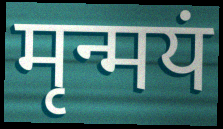
मृन्मयं